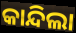
କାନ୍ଦିଲା